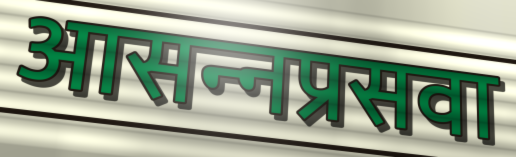
आसन्नप्रसवा